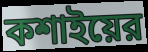
কশাইয়ের